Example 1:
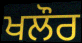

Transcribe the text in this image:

ਖਲੌਰ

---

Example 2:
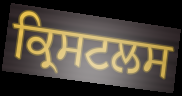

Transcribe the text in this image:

ਕ੍ਰਿਸਟਲਸ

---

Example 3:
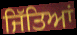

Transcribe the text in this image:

ਜਿੱਤਿਆਂ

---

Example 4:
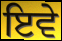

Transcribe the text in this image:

ਇਵੇ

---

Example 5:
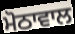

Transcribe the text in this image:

ਮੋਠਾਵਾਲ